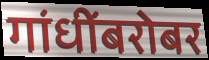
गांधींबरोबर